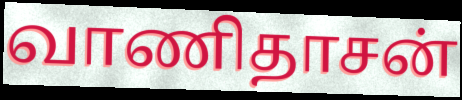
வாணிதாசன்